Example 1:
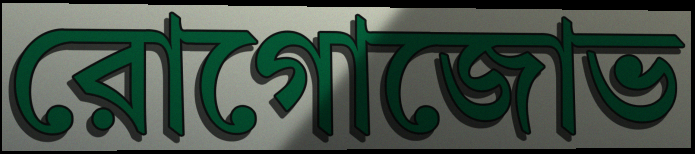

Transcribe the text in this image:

রোগোজোভ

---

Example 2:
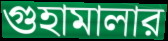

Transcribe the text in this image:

গুহামালার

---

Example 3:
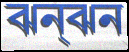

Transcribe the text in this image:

ঝন্ঝন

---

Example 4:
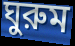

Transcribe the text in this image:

ঘুরুম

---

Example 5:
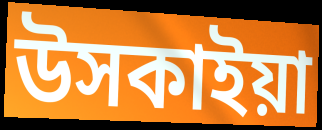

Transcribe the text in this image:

উসকাইয়া